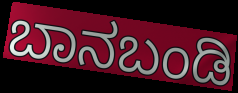
ಬಾನಬಂಡಿ